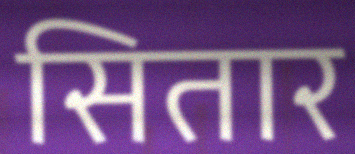
सितार